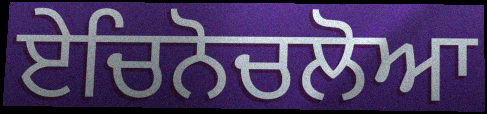
ਏਚਿਨੋਚਲੋਆ